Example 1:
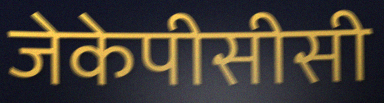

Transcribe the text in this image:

जेकेपीसीसी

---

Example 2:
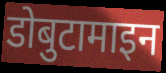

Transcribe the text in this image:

डोबुटामाइन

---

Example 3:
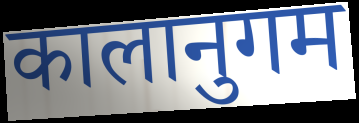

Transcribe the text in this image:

कालानुगम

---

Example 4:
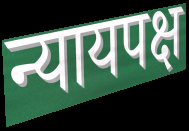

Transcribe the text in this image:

न्यायपक्ष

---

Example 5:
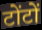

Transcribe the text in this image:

टोंटों